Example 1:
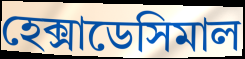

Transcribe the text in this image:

হেক্সাডেসিমাল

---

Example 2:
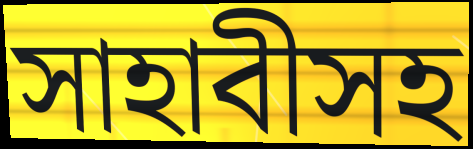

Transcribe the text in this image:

সাহাবীসহ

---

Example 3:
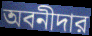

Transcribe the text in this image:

অবনীদার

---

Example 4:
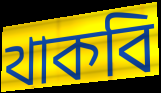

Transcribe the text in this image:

থাকবি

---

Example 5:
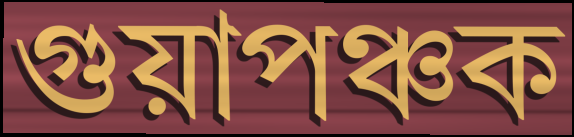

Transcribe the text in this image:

গুয়াপঞ্চক